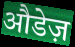
औडेज़